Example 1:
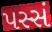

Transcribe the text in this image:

પસ્સં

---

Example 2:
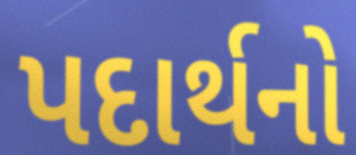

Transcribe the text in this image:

પદાર્થનો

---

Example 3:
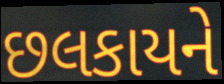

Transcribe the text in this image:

છલકાયને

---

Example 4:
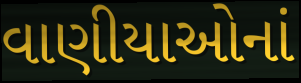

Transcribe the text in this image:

વાણીયાઓનાં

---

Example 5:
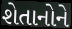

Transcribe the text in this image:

શેતાનોને